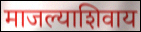
माजल्याशिवाय